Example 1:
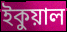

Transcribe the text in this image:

ইকুয়াল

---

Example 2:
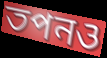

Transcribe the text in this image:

তপনও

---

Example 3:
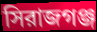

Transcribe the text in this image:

সিরাজগঞ্জ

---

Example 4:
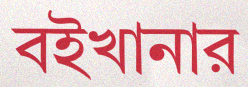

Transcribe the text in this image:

বইখানার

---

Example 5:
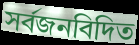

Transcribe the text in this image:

সর্বজনবিদিত